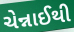
ચેન્નાઈથી